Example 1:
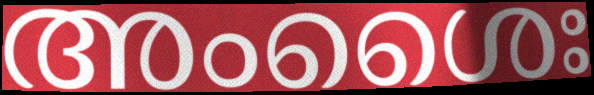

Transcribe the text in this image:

അംശൈഃ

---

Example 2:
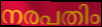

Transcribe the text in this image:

നരപതിം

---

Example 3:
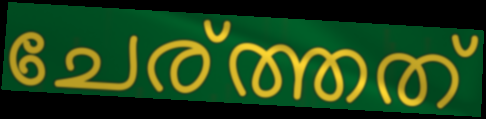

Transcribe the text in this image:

ചേര്ത്തത്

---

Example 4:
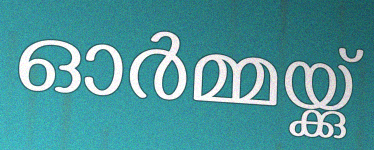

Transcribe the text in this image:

ഓർമ്മയ്ക്കു്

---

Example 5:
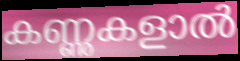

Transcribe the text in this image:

കണ്ണുകളാൽ